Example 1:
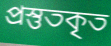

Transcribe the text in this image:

প্রস্তুতকৃত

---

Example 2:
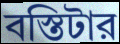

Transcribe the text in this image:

বস্তিটার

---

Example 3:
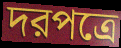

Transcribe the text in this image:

দরপত্রে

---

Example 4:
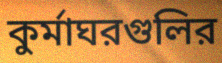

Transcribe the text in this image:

কুর্মাঘরগুলির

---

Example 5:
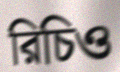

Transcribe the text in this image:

রিচিও